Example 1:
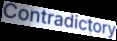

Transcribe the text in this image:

Contradictory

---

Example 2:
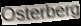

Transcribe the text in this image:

Osterberg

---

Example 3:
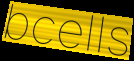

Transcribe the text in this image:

bcells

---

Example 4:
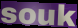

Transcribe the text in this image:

souk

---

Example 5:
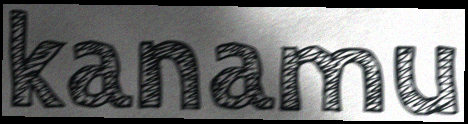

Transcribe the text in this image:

kanamu